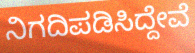
ನಿಗದಿಪಡಿಸಿದ್ದೇವೆ